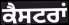
ਕੈਸਟਰਾਂ